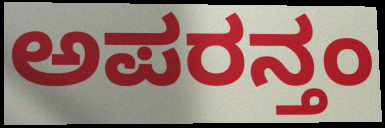
ಅಪರನ್ತಂ